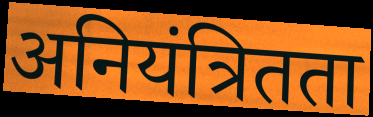
अनियंत्रितता